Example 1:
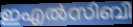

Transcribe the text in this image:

ഇഎൽസിബി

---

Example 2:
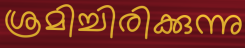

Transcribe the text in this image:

ശ്രമിച്ചിരിക്കുന്നു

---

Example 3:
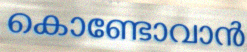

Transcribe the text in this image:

കൊണ്ടോവാൻ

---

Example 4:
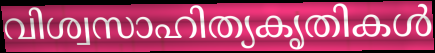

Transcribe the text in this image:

വിശ്വസാഹിത്യകൃതികൾ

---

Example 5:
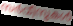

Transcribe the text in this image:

സർവീസുകൾ